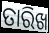
ତାରିଖ